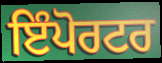
ਇੰਪੋਰਟਰ